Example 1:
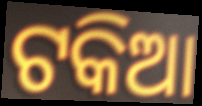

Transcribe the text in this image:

ଟକିଆ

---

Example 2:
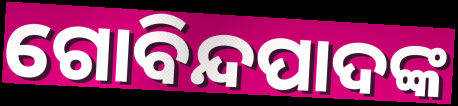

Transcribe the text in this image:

ଗୋବିନ୍ଦପାଦଙ୍କ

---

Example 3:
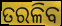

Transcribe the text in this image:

ତରଳିବ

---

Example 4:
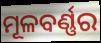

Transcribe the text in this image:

ମୂଳବର୍ଣ୍ଣର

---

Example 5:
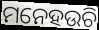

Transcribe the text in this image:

ମନେହଉଚି